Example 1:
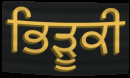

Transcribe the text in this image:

ਭਿੜੂਕੀ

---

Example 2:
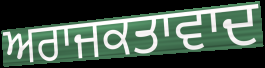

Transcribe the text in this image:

ਅਰਾਜਕਤਾਵਾਦ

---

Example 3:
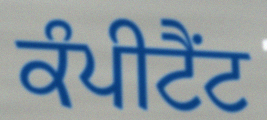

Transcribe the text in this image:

ਕੰਪੀਟੈਂਟ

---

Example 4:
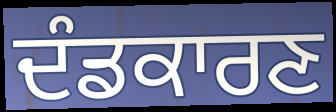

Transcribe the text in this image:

ਦੰਡਕਾਰਣ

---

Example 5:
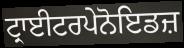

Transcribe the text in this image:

ਟ੍ਰਾਈਟਰਪੇਨੋਇਡਜ਼